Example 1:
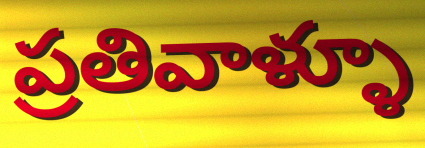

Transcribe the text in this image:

ప్రతివాళ్ళూ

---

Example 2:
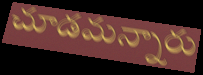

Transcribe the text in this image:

చూడమన్నారు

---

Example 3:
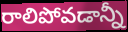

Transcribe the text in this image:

రాలిపోవడాన్నీ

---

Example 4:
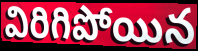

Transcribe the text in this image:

విరిగిపోయిన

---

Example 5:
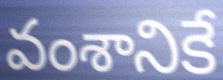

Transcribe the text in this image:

వంశానికే